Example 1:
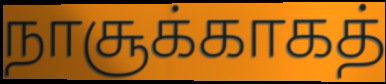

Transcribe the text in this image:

நாசூக்காகத்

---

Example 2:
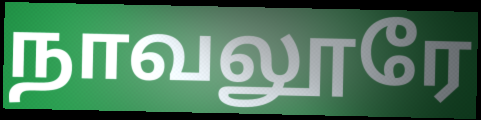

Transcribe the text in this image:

நாவலூரே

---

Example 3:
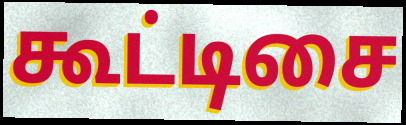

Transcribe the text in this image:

கூட்டிசை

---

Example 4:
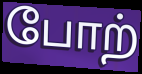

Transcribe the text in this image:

போற்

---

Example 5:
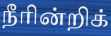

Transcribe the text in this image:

நீரின்றிக்